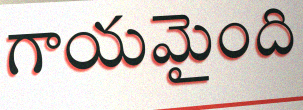
గాయమైంది